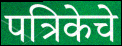
पत्रिकेचे